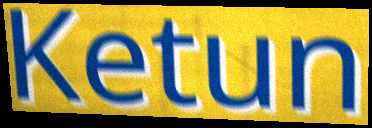
Ketun